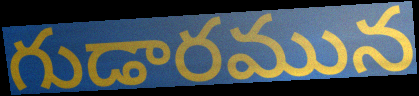
గుడారమున